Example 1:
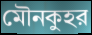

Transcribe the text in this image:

মৌনকুহর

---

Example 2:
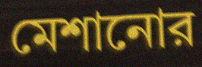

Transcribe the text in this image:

মেশানোর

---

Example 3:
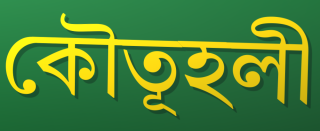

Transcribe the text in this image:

কৌতূহলী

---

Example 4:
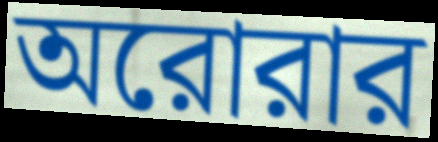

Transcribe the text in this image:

অরোরার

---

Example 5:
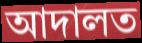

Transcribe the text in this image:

আদালত